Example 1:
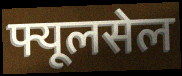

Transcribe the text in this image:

फ्यूलसेल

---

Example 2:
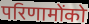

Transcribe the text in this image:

परिणामोंको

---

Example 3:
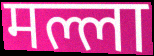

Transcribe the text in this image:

मल्‍ला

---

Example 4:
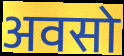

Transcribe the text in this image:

अवसो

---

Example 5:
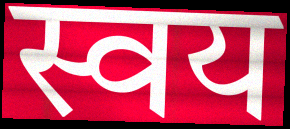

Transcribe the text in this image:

स्वय